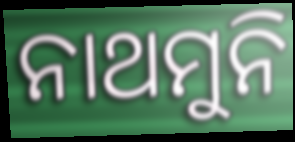
ନାଥମୁନି